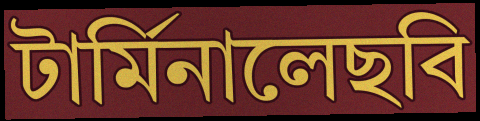
টার্মিনালেছবি